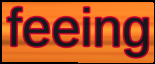
feeing